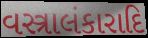
વસ્ત્રાલંકારાદિ